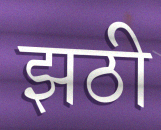
झठी